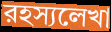
রহস্যলেখা